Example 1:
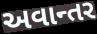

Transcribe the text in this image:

અવાન્તર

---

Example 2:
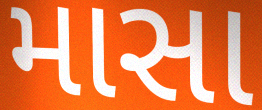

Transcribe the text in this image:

માસા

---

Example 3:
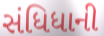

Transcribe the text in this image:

સંધિધાની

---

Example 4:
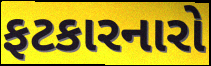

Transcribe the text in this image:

ફટકારનારો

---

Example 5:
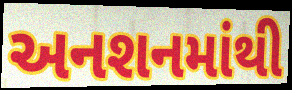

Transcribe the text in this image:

અનશનમાંથી